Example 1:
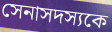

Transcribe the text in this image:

সেনাসদস্যকে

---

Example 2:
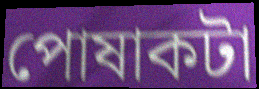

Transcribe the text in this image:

পোষাকটা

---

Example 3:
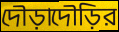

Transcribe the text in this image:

দৌড়াদৌড়ির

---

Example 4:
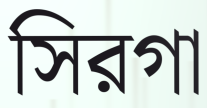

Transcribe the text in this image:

সিরগা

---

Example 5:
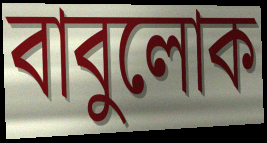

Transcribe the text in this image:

বাবুলোক